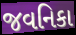
જવનિકા